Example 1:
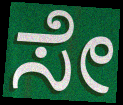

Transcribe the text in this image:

ಸೇ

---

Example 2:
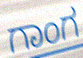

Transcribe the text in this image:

ಗಾಂಗ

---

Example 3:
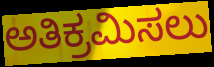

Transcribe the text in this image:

ಅತಿಕ್ರಮಿಸಲು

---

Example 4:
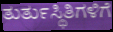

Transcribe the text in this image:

ತುರ್ತುಸ್ಥಿತಿಗಳಿಗೆ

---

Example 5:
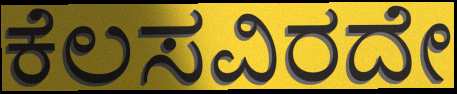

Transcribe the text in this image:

ಕೆಲಸವಿರದೇ